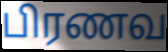
பிரணவ